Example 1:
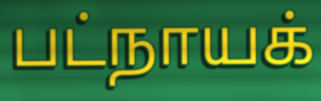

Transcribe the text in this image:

பட்நாயக்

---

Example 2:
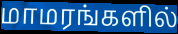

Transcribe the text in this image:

மாமரங்களில்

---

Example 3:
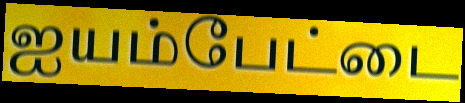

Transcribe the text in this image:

ஐயம்பேட்டை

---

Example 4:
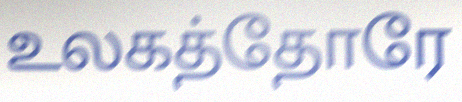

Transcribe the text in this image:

உலகத்தோரே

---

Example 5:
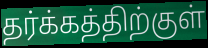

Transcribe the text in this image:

தர்க்கத்திற்குள்